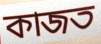
কাজত